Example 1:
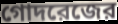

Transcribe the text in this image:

গোদরেজের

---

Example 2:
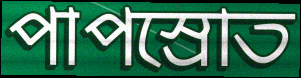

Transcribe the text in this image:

পাপস্রোত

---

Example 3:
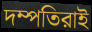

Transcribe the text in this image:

দম্পতিরাই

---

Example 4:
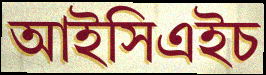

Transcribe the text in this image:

আইসিএইচ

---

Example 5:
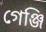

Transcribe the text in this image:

গেঞ্জি